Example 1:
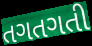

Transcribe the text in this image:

તગતગતી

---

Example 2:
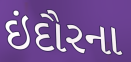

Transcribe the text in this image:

ઇંદૌરના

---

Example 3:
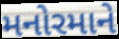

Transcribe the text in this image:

મનોરમાને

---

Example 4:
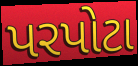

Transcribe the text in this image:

પરપોટા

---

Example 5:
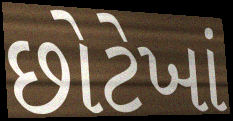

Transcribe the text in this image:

છોટેખાં